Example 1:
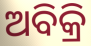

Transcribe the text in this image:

ଅବିକ୍ରି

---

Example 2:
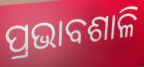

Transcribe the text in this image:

ପ୍ରଭାବଶାଳି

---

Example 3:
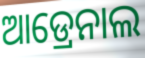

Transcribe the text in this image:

ଆଡ୍ରେନାଲ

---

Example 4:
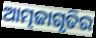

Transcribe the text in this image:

ଆତ୍ମଜାଗୃତିର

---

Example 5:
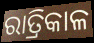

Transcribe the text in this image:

ରାତ୍ରିକାଳ